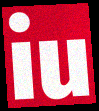
iu